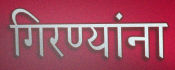
गिरण्यांना